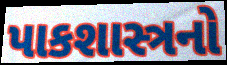
પાકશાસ્ત્રનો